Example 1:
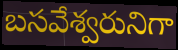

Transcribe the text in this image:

బసవేశ్వరునిగా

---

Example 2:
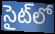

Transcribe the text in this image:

సైట్‌లో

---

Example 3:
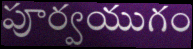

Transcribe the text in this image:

పూర్వయుగం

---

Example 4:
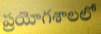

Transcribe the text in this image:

ప్రయోగశాలలో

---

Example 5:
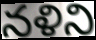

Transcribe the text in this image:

నళిని